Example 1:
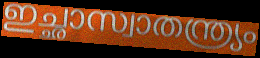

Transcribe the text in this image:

ഇച്ഛാസ്വാതന്ത്ര്യം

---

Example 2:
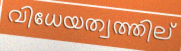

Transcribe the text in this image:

വിധേയത്വത്തില്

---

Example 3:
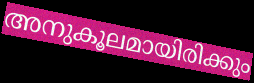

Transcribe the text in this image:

അനുകൂലമായിരിക്കും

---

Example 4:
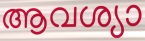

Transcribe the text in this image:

ആവശ്യാ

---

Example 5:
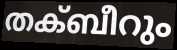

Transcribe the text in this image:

തക്ബീറും